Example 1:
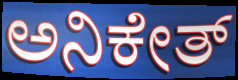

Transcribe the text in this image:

ಅನಿಕೇತ್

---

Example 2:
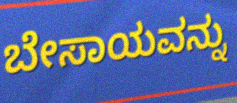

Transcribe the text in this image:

ಬೇಸಾಯವನ್ನು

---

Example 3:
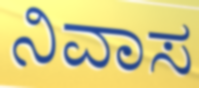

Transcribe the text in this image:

ನಿವಾಸ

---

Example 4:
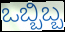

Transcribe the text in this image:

ಒಬ್ಬಿಬ್ಬ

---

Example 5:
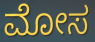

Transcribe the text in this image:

ಮೋಸ